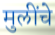
मुलींचे